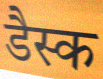
डैस्क